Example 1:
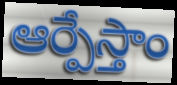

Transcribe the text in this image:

ఆర్పేస్తాం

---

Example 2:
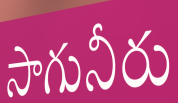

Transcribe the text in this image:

సాగునీరు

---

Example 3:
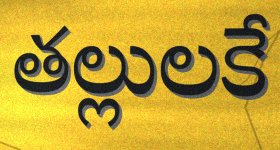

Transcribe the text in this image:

తల్లులకే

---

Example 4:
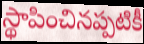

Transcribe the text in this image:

స్థాపించినప్పటికీ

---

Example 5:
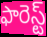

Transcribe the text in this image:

ఫారెస్ట్